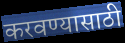
करवण्यासाठी